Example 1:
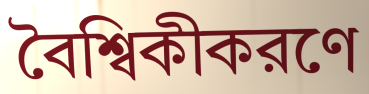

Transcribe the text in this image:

বৈশ্বিকীকরণে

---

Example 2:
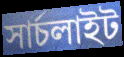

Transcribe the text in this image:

সার্চলাইট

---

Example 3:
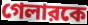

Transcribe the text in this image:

গেলারকে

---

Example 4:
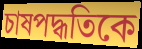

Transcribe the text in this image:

চাষপদ্ধতিকে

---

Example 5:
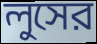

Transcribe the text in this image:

লুসের